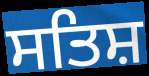
ਸਤਿਸ਼